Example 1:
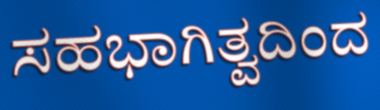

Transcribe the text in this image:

ಸಹಭಾಗಿತ್ವದಿಂದ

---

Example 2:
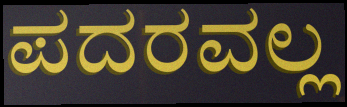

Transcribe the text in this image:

ಪದರವಲ್ಲ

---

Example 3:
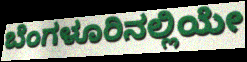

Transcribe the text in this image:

ಬೆಂಗಳೂರಿನಲ್ಲಿಯೇ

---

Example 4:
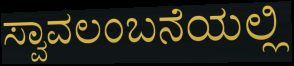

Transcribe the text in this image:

ಸ್ವಾವಲಂಬನೆಯಲ್ಲಿ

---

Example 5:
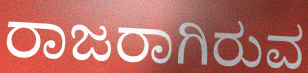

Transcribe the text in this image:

ರಾಜರಾಗಿರುವ